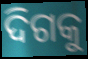
ଦିଗକୁ